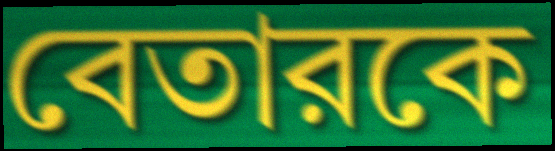
বেতারকে